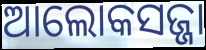
ଆଲୋକସଜ୍ଜା